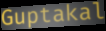
Guptakal